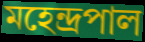
মহেন্দ্রপাল